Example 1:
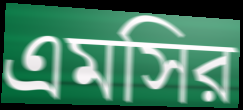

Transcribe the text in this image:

এমসির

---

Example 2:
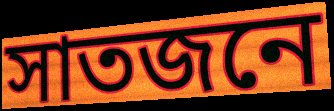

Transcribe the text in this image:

সাতজনে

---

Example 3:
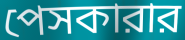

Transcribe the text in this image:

পেসকারার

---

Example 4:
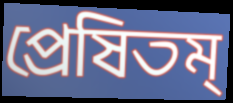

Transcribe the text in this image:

প্রেষিতম্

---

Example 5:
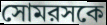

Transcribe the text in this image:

সোমরসকে